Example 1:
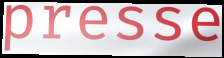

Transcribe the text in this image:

presse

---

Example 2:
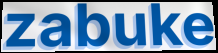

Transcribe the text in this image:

zabuke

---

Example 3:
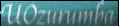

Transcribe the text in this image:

UOzurumba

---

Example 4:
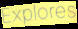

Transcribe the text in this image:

Explores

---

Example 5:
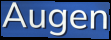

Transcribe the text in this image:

Augen